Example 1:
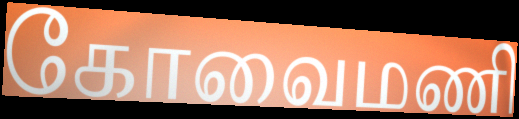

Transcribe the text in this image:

கோவைமணி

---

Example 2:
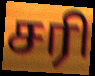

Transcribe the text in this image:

சரி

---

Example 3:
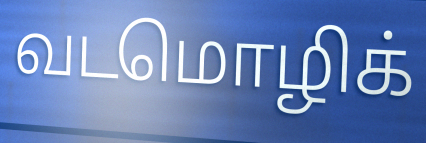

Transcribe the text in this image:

வடமொழிக்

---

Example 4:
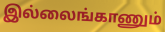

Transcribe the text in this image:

இல்லைங்காணும்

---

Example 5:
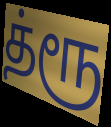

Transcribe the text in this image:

த்ரூ